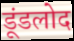
डूंडलोद